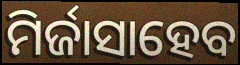
ମିର୍ଜାସାହେବ